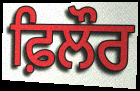
ਫ਼ਿਲੌਰ